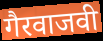
गैरवाजवी